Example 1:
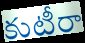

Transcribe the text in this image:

కుటీరా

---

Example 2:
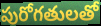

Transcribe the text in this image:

పురోగతులతో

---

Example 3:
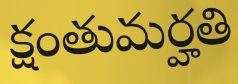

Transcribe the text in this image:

క్షంతుమర్హతి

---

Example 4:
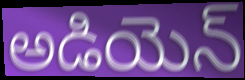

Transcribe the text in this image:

అడియెన్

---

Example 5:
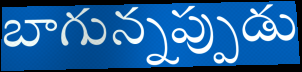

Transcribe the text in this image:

బాగున్నప్పుడు